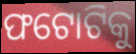
ଫଟୋଟିକୁ